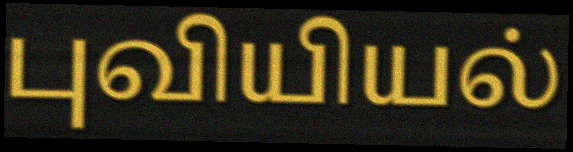
புவியியல்